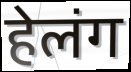
हेलंग